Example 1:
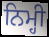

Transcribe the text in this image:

ਨਿਮ੍ਹੀ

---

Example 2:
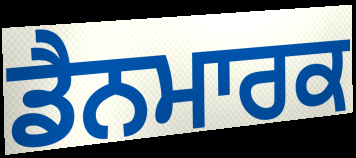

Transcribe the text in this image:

ਡੈਨਮਾਰਕ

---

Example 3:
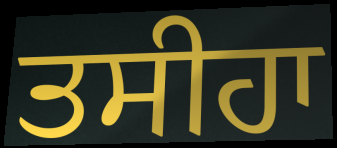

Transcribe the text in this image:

ਤਸੀਹਾ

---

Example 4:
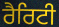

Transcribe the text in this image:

ਰੈਰਿਟੀ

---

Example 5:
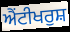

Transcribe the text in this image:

ਐਂਟੀਖਰੁਸ਼